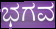
ಭಗವ